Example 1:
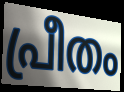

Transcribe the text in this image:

പ്രീതം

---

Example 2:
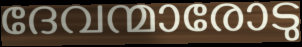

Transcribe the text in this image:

ദേവന്മാരോടു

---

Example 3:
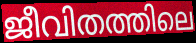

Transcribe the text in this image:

ജീവിതത്തിലെ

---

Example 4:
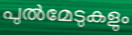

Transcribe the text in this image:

പുൽമേടുകളും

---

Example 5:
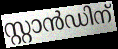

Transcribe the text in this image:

സ്റ്റാൻഡിന്